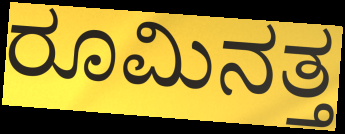
ರೂಮಿನತ್ತ